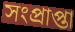
সংপ্রাপ্তা